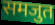
समजुत